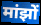
मांझों